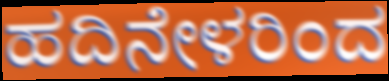
ಹದಿನೇಳರಿಂದ